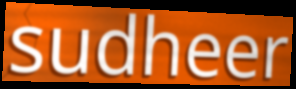
sudheer